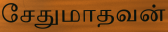
சேதுமாதவன்